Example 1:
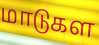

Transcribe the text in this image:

மாடுகள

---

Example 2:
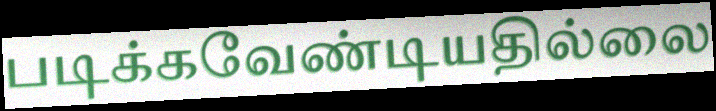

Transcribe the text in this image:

படிக்கவேண்டியதில்லை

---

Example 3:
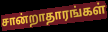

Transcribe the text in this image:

சான்றாதாரங்கள்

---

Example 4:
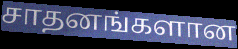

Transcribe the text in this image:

சாதனங்களான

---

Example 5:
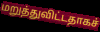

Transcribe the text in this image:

மறுத்துவிட்டதாகச்